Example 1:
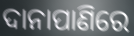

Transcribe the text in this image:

ଦାନାପାଣିରେ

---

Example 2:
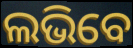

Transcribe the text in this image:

ଲଭିବେ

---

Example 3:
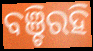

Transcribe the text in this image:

ବଞ୍ଚିରହି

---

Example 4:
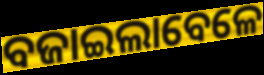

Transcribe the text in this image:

ବଜାଇଲାବେଳେ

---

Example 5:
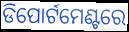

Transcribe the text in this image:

ଡିପୋର୍ଟମେଣ୍ଟରେ